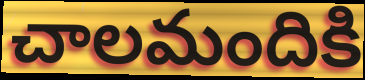
చాలమందికి